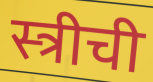
स्त्रीची